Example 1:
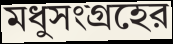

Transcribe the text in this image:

মধুসংগ্রহের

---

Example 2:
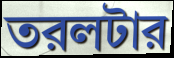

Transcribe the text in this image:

তরলটার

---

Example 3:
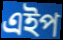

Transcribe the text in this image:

এইপ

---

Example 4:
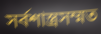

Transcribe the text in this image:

সর্বশাস্ত্রসম্মত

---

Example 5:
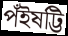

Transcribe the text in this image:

পঁইষট্টি